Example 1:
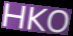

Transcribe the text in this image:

HKO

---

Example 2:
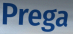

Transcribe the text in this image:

Prega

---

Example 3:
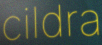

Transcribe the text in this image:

cildra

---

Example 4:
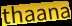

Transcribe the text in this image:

thaana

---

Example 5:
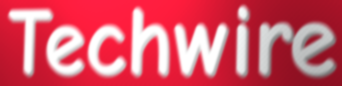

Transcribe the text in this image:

Techwire